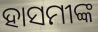
ହାସମୀଙ୍କ